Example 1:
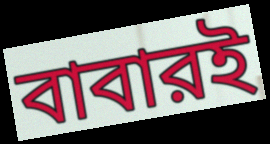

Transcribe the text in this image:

বাবারই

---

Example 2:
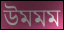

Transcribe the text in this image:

উমমম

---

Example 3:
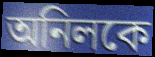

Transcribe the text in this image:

অনিলকে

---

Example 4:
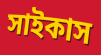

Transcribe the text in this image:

সাইকাস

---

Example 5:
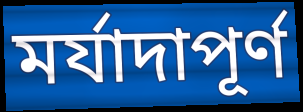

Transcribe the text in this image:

মর্যাদাপূর্ণ